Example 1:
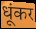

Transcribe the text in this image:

धूंकर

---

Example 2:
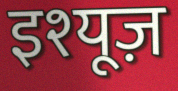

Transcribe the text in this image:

इश्यूज़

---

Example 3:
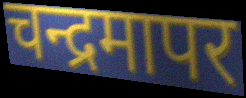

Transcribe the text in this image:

चन्द्रमापर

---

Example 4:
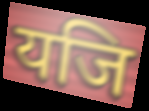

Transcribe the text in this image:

यजि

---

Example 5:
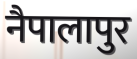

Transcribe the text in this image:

नैपालापुर